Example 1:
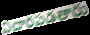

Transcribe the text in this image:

విచారపడతారు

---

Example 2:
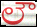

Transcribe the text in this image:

లౌ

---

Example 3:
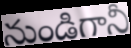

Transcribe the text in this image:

నుండిగానీ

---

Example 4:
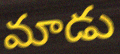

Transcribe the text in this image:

మాడు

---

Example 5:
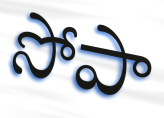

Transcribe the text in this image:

సోపా